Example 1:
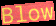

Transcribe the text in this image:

Blow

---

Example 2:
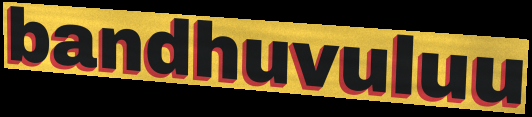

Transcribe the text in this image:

bandhuvuluu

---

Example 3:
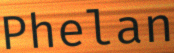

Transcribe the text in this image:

Phelan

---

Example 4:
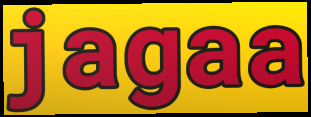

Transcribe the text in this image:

jagaa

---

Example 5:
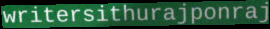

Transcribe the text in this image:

writersithurajponraj